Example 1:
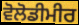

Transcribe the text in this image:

ਵੋਲੋਡੀਮੀਰ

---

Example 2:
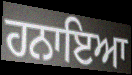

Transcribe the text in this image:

ਹਨਾਇਆ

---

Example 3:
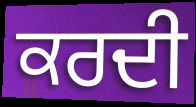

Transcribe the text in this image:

ਕਰਦੀ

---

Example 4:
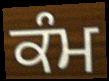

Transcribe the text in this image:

ਕੰਮ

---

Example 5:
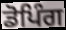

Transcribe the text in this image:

ਡੋਪਿੰਗ